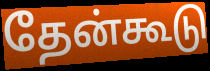
தேன்கூடு